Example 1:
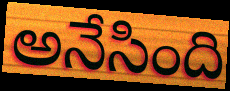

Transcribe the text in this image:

అనేసింది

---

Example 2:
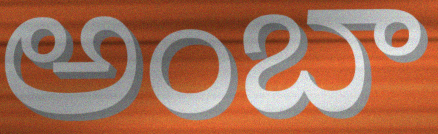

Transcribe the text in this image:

అంబా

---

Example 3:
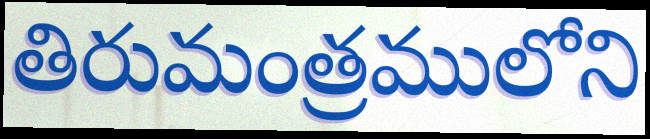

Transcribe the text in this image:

తిరుమంత్రములోని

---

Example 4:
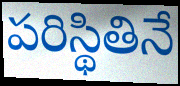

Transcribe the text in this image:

పరిస్థితినే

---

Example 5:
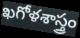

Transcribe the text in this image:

ఖగోళశాస్త్రం